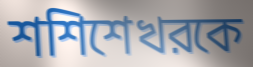
শশিশেখরকে